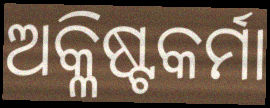
ଅକ୍ଳିଷ୍ଟକର୍ମା